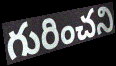
గురించని